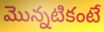
మొన్నటికంటే